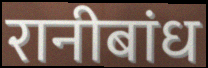
रानीबांध